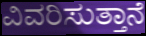
ವಿವರಿಸುತ್ತಾನೆ